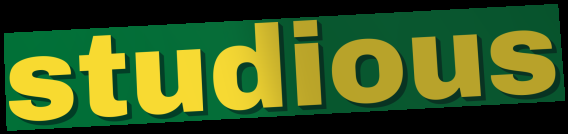
studious